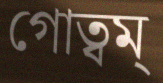
গোত্বম্